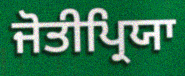
ਜੋਤੀਪ੍ਰਿਯਾ